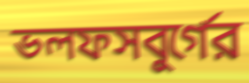
ভলফসবুর্গের